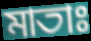
মাতাঃ